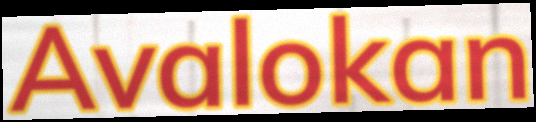
Avalokan